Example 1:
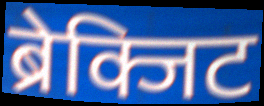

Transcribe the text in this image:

ब्रेक्जिट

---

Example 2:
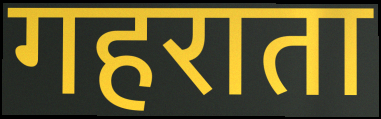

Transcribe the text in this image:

गहराता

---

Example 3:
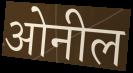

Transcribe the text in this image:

ओनील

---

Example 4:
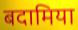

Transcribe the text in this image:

बदामिया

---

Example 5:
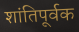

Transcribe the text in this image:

शांतिपूर्वक